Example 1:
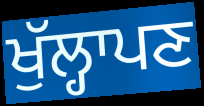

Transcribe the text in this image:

ਖੁੱਲ੍ਹਾਪਣ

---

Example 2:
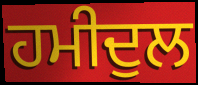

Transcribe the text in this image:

ਹਮੀਦੁਲ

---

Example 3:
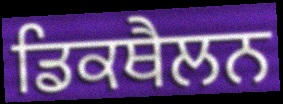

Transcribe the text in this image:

ਡਿਕਥੈਲਨ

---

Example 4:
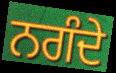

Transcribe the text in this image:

ਨਗੰਦੇ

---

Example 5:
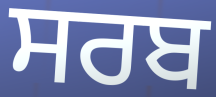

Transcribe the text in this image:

ਸਰਬ